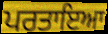
ਪਰਤਾਇਆ